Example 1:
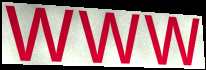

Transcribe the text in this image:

WWW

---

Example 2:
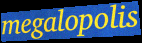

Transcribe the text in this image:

megalopolis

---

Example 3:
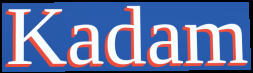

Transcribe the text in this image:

Kadam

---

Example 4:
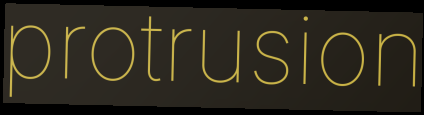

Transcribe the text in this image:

protrusion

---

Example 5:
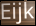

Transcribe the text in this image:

Eijk